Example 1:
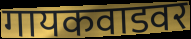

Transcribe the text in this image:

गायकवाडवर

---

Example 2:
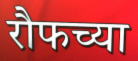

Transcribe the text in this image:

रौफच्या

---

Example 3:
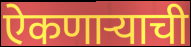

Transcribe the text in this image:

ऐकणार्‍याची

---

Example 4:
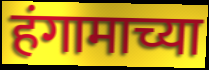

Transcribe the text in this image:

हंगामाच्या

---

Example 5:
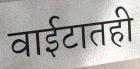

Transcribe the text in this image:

वाईटातही